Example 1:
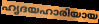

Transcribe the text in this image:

ഹൃദയഹാരിയായ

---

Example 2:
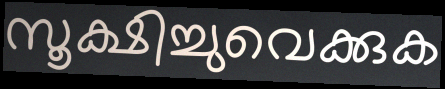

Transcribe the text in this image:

സൂക്ഷിച്ചുവെക്കുക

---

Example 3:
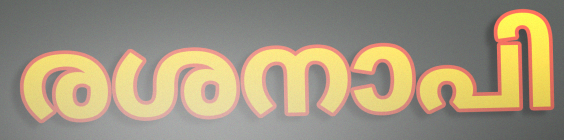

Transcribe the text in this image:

രശനാപി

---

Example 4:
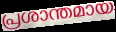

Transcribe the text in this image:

പ്രശാന്തമായ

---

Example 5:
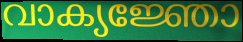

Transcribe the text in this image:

വാക്യജ്ഞോ